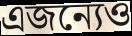
এজন্যেও